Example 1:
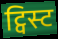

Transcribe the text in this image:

ट्विस्ट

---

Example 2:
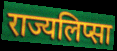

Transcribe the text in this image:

राज्यलिप्सा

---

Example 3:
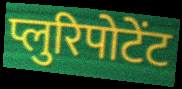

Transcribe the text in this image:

प्लुरिपोटेंट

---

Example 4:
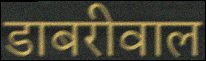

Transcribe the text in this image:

डाबरीवाल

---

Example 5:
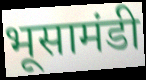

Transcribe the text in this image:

भूसामंडी